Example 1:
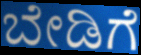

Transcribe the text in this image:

ಬೇಡಿಗೆ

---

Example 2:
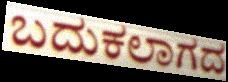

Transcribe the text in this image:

ಬದುಕಲಾಗದ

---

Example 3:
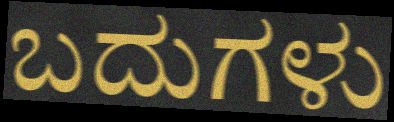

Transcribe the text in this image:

ಬದುಗಳು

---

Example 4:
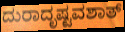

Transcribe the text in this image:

ದುರಾದೃಷ್ಟವಶಾತ್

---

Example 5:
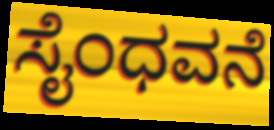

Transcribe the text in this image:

ಸೈಂಧವನೆ